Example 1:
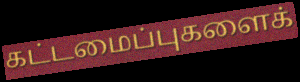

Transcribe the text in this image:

கட்டமைப்புகளைக்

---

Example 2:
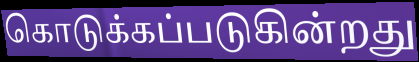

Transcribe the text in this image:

கொடுக்கப்படுகின்றது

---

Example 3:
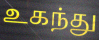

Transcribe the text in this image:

உகந்து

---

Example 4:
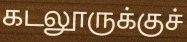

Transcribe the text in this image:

கடலூருக்குச்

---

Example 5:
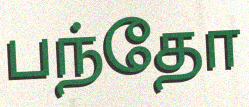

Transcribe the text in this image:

பந்தோ